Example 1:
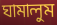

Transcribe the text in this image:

ঘামালুম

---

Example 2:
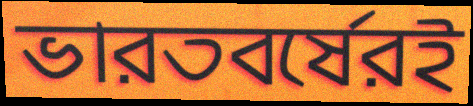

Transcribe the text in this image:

ভারতবর্ষেরই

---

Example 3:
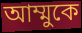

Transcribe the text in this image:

আম্মুকে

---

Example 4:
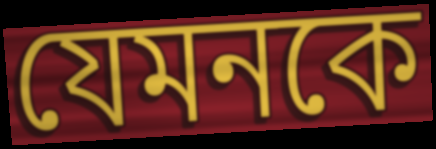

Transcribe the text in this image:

যেমনকে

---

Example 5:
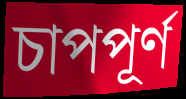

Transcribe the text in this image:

চাপপূর্ণ